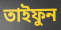
তাইফুন